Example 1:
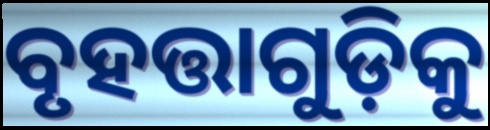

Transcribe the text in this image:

ବୃହତ୍ତାଗୁଡ଼ିକୁ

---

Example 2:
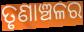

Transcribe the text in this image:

ତୃଣାଞ୍ଚଳର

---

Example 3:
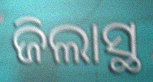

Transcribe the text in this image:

ଜିଲାସ୍ଥ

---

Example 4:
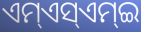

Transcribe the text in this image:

ଏମ୍ଏସ୍ଏମ୍ଇ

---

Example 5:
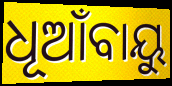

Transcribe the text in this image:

ଧୂଆଁବାୟୁ